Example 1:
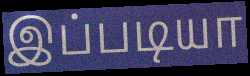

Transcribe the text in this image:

இப்படியா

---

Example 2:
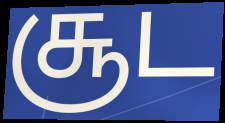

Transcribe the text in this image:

சூட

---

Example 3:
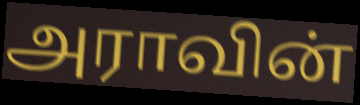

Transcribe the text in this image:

அராவின்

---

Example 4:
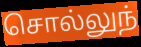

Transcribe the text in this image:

சொல்லுந்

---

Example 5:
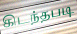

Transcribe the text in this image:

கிடந்தபடி